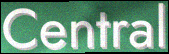
Central